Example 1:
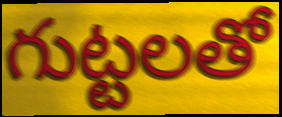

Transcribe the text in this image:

గుట్టలతో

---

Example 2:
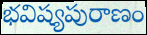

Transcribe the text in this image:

భవిష్యపురాణం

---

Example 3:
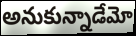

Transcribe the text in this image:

అనుకున్నాడేమో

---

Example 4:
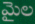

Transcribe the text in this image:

మైల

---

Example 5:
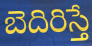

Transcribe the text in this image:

బెదిరిస్తే